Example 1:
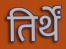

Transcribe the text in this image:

तिर्थें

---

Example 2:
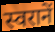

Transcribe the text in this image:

स्वरानें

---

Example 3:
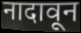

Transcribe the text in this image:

नादावून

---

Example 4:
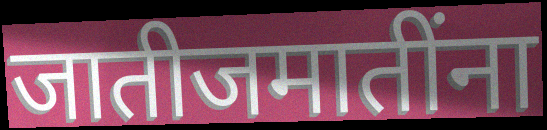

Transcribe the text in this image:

जातीजमातींना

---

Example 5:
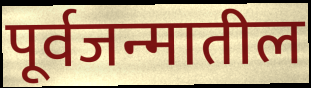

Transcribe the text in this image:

पूर्वजन्मातील